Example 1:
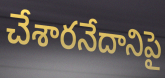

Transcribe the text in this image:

చేశారనేదానిపై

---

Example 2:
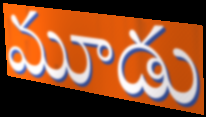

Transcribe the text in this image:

మూడు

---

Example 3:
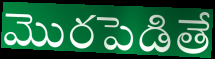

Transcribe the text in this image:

మొరపెడితే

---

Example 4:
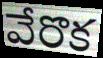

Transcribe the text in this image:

వేరొక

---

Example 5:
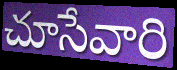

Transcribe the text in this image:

చూసేవారి